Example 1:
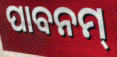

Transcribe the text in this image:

ପାବନମ୍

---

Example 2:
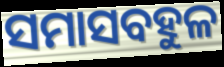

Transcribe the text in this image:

ସମାସବହୁଳ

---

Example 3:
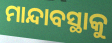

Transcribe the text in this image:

ମାନ୍ଦାବସ୍ଥାକୁ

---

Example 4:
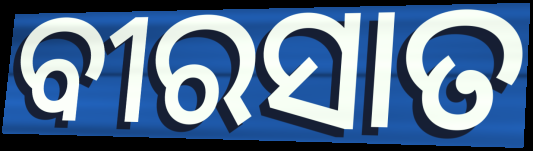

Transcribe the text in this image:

ବୀରସାତ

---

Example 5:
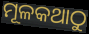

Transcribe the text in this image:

ମୂଳକଥାଠୁ